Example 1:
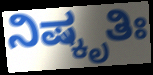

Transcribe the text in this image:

ನಿಷ್ಕೃತಿಃ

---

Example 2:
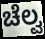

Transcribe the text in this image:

ಚೆಲ್ವ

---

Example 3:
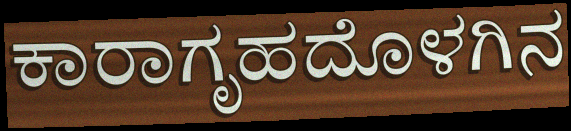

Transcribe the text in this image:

ಕಾರಾಗೃಹದೊಳಗಿನ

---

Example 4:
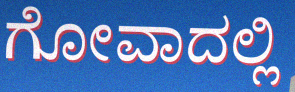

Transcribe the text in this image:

ಗೋವಾದಲ್ಲಿ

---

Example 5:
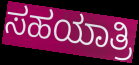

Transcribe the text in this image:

ಸಹಯಾತ್ರಿ